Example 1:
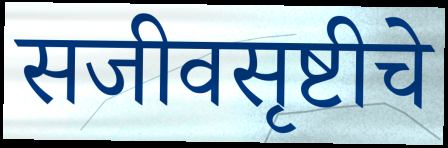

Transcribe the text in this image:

सजीवसृष्टीचे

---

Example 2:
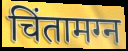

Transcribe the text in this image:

चिंतामग्न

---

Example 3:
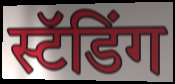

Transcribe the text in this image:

स्टॅडिंग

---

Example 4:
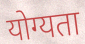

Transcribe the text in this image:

योग्यता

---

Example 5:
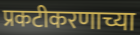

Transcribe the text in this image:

प्रकटीकरणाच्या